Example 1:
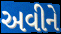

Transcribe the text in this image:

અવીને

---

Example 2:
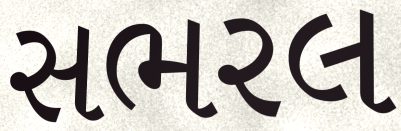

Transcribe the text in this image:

સભરલ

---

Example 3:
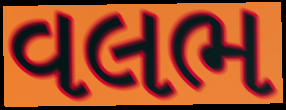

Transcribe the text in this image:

વલભ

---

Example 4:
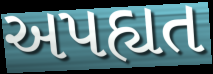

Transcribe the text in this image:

અપહ્યત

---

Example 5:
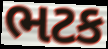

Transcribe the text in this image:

ભટક